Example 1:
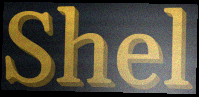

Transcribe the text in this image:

Shel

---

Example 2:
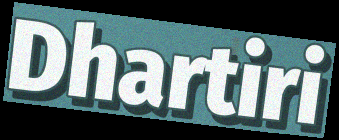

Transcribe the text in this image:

Dhartiri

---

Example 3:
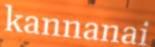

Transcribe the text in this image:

kannanai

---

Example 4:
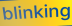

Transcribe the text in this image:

blinking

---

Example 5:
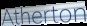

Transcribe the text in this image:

Atherton